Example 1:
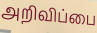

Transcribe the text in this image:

அறிவிப்பை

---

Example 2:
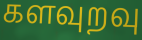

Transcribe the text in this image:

களவுறவு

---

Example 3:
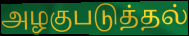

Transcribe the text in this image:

அழகுபடுத்தல்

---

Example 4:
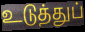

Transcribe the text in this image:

உடுத்துப்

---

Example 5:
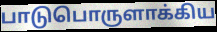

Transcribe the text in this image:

பாடுபொருளாக்கிய